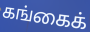
கங்கைக்